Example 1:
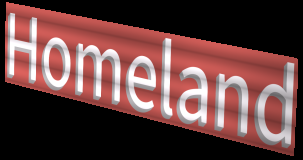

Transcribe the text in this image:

Homeland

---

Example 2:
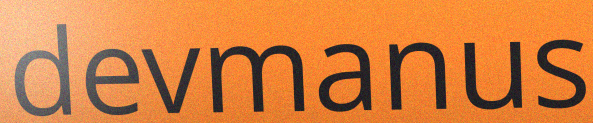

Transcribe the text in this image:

devmanus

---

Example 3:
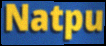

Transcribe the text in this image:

Natpu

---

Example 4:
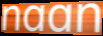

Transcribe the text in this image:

naan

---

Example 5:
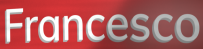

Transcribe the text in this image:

Francesco